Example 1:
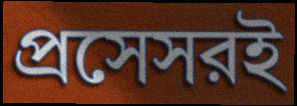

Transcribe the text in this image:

প্রসেসরই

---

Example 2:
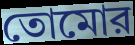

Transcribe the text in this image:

তোমোর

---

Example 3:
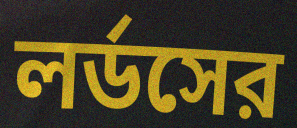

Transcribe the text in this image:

লর্ডসের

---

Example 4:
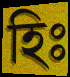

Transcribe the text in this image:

হিঃ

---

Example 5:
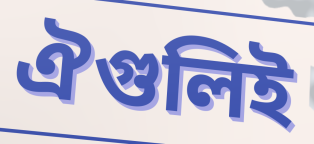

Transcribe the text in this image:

ঐগুলিই